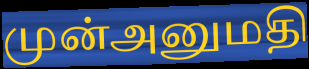
முன்அனுமதி